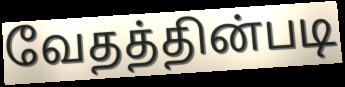
வேதத்தின்படி